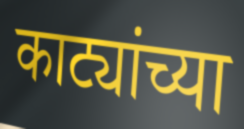
काट्यांच्या